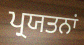
ਪ੍ਰਯਤਨਾਂ